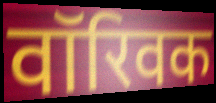
वॉरिवक